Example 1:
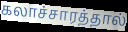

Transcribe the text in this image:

கலாச்சாரத்தால்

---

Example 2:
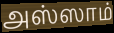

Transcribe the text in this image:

அஸ்ஸாம்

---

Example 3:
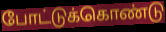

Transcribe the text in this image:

போட்டுக்கொண்டு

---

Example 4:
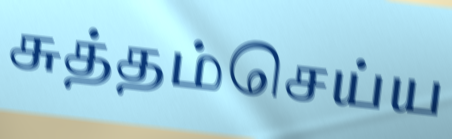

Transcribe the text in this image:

சுத்தம்செய்ய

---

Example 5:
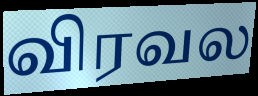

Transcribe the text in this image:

விரவல